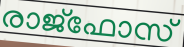
രാജ്ഫോസ്